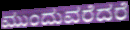
ಮುಂದುವರೆದರೆ